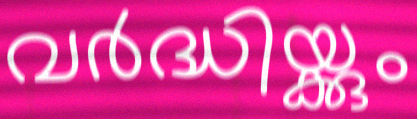
വർദ്ധിയ്ക്കും